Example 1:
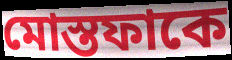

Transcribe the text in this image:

মোস্তফাকে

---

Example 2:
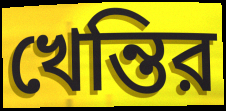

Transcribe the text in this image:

খেন্তির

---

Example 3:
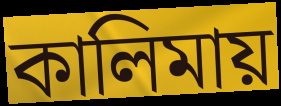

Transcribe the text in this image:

কালিমায়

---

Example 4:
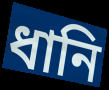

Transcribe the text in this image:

ধানি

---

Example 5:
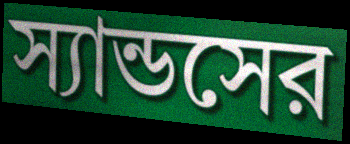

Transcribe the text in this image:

স্যান্ডসের